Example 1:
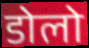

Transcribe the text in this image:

डोलो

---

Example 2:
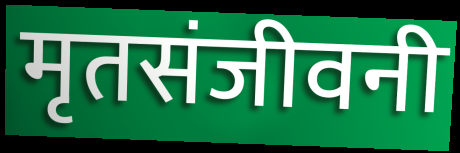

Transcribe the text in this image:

मृतसंजीवनी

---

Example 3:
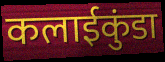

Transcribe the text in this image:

कलाईकुंडा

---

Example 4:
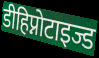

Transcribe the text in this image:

डीहिप्नोटाइज्ड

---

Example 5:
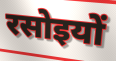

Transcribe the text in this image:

रसोइयों